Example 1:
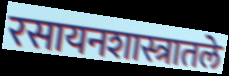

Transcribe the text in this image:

रसायनशास्त्रातले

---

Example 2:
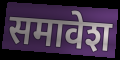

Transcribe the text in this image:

समावेश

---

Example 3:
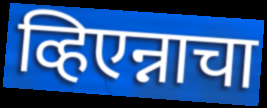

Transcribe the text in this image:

व्हिएन्नाचा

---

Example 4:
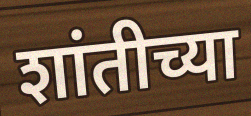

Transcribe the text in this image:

शांतीच्या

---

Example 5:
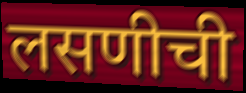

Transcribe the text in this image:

लसणीची